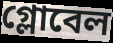
গ্লোবেল